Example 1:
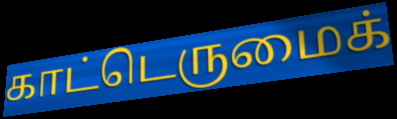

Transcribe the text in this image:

காட்டெருமைக்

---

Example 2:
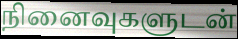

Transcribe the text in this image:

நினைவுகளுடன்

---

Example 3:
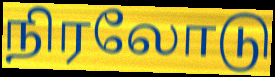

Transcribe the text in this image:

நிரலோடு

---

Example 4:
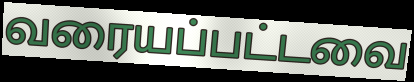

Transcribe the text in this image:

வரையப்பட்டவை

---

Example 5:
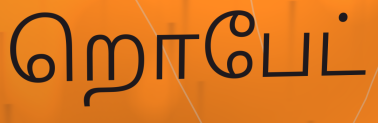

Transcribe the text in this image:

றொபேட்